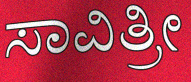
ಸಾವಿತ್ರೀ